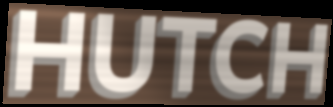
HUTCH